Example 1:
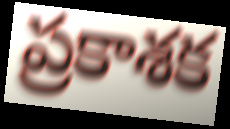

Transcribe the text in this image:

ప్రకాశక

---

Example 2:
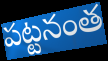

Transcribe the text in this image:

పట్టనంత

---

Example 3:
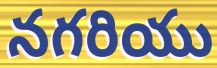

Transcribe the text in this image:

నగరియు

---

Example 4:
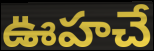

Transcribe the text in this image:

ఊహచే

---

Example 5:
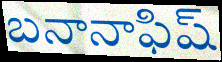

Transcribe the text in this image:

బనానాఫిష్